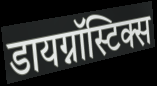
डायग्नॉस्टिक्स